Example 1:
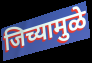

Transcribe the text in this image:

जिच्यामुळे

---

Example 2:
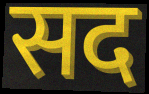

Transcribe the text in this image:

सद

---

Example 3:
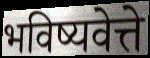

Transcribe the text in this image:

भविष्यवेत्ते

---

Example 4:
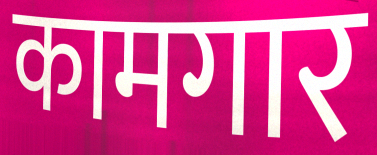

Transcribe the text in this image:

कामगार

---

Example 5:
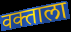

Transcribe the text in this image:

वक्ताला